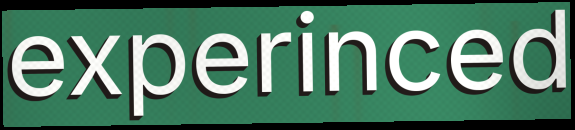
experinced